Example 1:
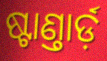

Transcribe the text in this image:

ଷ୍ଟାଣ୍ତାର୍ଡ଼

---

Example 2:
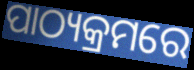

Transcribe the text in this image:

ପାଠ୍ୟକ୍ରମରେ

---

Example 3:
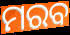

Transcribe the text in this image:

ମରବ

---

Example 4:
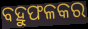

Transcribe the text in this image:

ବହୁଫଳକର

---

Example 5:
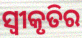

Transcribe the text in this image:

ସ୍ୱୀକୃତିର